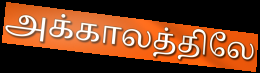
அக்காலத்திலே